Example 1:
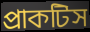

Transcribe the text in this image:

প্রাকটিস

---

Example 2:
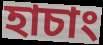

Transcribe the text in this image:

হাচাং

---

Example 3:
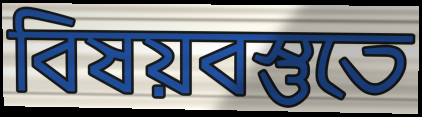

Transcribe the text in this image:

বিষয়বস্তুতে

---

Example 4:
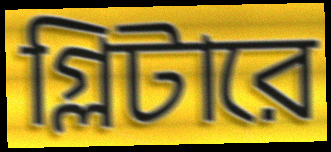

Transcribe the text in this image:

গ্লিটারে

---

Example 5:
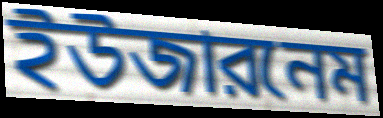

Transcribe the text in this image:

ইউজারনেম